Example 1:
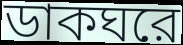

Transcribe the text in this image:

ডাকঘরে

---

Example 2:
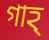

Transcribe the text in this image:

গাহ্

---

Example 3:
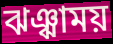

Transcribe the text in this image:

ঝঞ্ঝাময়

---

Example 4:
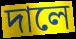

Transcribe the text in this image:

দালে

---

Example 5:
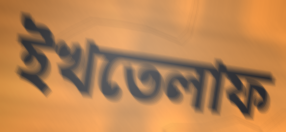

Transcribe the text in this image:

ইখতেলাফ